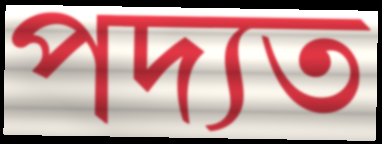
পদ্যত